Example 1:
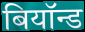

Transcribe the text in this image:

बियॉन्ड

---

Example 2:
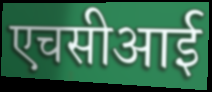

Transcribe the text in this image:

एचसीआई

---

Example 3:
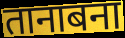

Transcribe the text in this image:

तानाबना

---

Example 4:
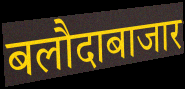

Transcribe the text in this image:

बलौदाबाजार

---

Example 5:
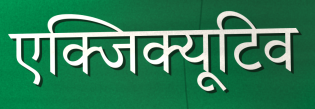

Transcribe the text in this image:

एक्जिक्यूटिव